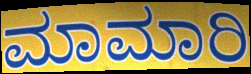
ಮಾಮಾರಿ